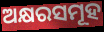
ଅକ୍ଷରସମୂହ